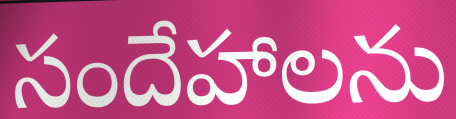
సందేహాలను